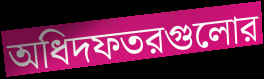
অধিদফতরগুলোর